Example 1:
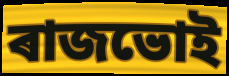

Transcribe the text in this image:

ৰাজভোই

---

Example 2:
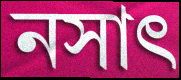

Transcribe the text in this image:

নসাৎ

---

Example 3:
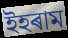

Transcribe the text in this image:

ইহৰাম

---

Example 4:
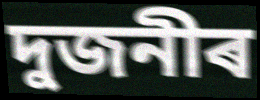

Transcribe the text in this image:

দুজনীৰ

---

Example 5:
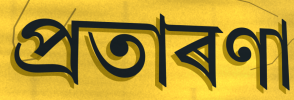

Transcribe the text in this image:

প্ৰতাৰণা